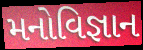
મનોવિજ્ઞાન